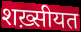
शख़्सीयत